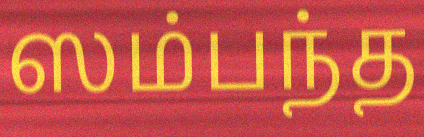
ஸம்பந்த